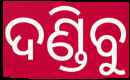
ଦଣ୍ଡିବୁ